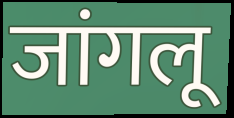
जांगलू